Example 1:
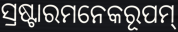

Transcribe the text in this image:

ସ୍ରଷ୍ଟାରମନେକରୂପମ୍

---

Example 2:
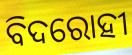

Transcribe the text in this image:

ବିଦରୋହୀ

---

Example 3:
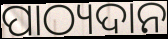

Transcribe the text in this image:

ପାଠ୍ୟଦାନ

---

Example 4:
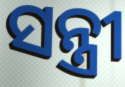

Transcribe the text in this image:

ସନ୍ତ୍ରୀ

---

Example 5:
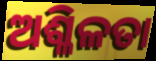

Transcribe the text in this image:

ଅଶ୍ଳିଳତା